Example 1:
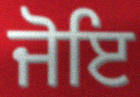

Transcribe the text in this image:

ਜੋਇ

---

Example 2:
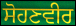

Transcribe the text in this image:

ਸੋਹਣਵੀਰ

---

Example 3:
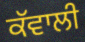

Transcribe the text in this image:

ਕੱਵਾਲੀ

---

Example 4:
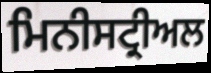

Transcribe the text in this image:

ਮਿਨੀਸਟ੍ਰੀਅਲ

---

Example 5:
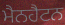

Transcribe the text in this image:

ਮੈਨਹੈਟਨ